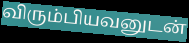
விரும்பியவனுடன்